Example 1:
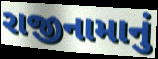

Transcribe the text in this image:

રાજીનામાનું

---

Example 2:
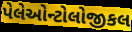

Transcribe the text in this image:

પેલેઓન્ટોલોજીકલ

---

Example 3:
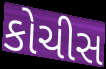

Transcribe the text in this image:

કોચીસ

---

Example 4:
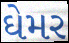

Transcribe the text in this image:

ઘેમર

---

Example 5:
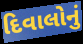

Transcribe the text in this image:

દિવાલોનું